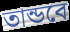
তান্ডবে